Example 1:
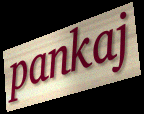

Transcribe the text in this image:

pankaj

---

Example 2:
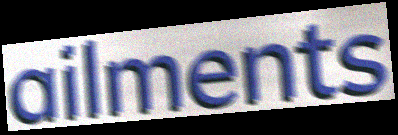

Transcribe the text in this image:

ailments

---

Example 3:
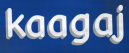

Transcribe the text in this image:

kaagaj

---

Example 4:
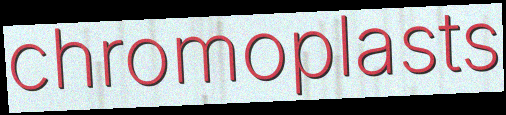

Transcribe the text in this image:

chromoplasts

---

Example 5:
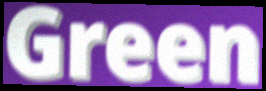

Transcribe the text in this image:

Green